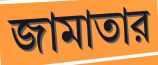
জামাতার